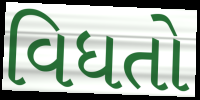
વિધતો